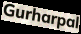
Gurharpal